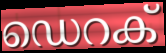
ഡെറക്